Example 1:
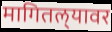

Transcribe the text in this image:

मागितल्यावर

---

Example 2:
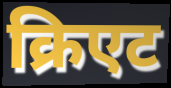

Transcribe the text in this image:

क्रिएट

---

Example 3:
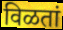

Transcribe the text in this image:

विळतां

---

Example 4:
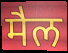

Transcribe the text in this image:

मैल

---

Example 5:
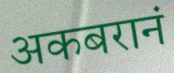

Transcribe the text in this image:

अकबरानं